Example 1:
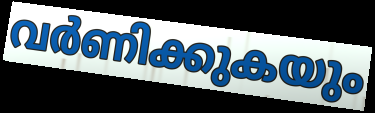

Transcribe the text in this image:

വർണിക്കുകയും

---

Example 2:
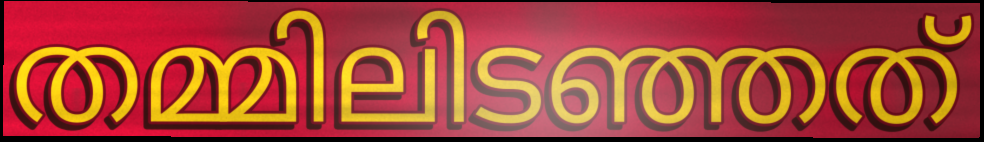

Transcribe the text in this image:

തമ്മിലിടഞ്ഞത്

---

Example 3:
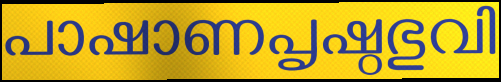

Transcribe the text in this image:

പാഷാണപൃഷ്ഠഭുവി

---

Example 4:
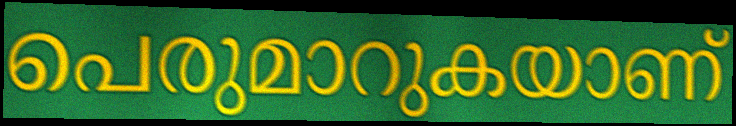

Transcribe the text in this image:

പെരുമാറുകയാണ്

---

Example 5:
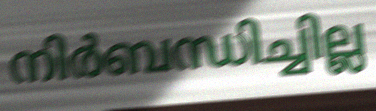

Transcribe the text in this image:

നിർബന്ധിച്ചില്ല